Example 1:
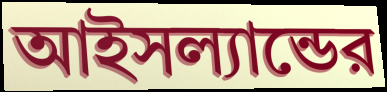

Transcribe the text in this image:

আইসল্যান্ডের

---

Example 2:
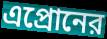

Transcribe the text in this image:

এপ্রোনের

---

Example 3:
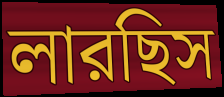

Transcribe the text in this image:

লারছিস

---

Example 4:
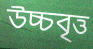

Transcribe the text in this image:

উচ্চবৃত্ত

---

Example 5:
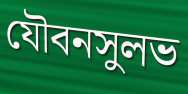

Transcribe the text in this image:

যৌবনসুলভ